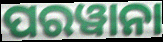
ପରୱାନା